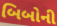
બિબોની